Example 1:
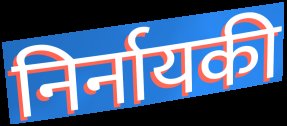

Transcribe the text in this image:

निर्नायकी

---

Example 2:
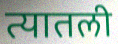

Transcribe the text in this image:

त्यातली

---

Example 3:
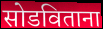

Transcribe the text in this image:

सोडविताना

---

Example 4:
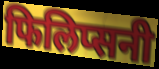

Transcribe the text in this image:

फिलिप्सनी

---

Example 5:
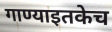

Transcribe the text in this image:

गाण्याइतकेच